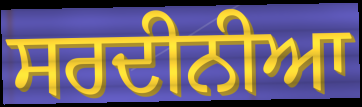
ਸਰਦੀਨੀਆ